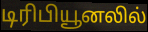
டிரிபியூனலில்